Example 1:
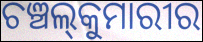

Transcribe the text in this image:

ଚଞ୍ଚଲ୍‍କୁମାରୀର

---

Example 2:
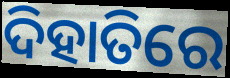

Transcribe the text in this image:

ଦିହାତିରେ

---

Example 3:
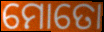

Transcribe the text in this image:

ମୋତୋ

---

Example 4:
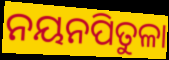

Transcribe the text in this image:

ନୟନପିତୁଳା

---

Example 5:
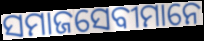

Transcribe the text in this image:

ସମାଜସେବୀମାନେ